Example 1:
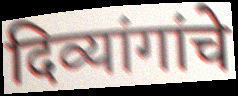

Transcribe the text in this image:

दिव्यांगांचे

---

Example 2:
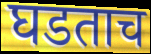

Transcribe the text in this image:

घडताच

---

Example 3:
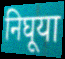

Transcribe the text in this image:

निघूया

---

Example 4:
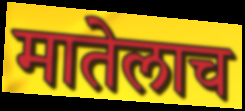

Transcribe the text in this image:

मातेलाच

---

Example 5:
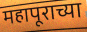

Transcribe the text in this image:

महापूराच्या